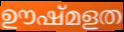
ഊഷ്മളത